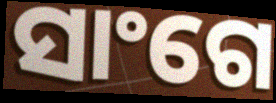
ସାଂଗେ